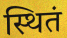
स्थितं